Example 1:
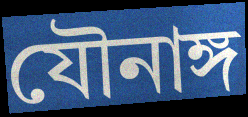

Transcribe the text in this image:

যৌনাঙ্গ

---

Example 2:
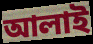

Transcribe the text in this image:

আলাই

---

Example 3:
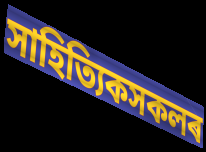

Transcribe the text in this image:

সাহিত্যিকসকলৰ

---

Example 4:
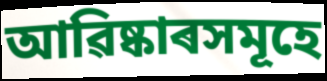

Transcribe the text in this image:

আৱিষ্কাৰসমূহে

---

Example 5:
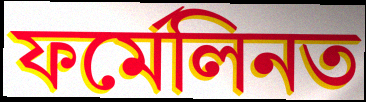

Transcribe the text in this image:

ফৰ্মেলিনত